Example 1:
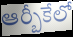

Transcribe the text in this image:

ఆర్బీకేలో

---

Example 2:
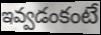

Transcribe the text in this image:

ఇవ్వడంకంటే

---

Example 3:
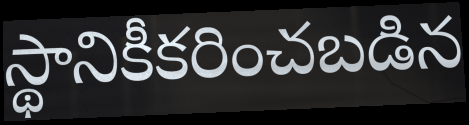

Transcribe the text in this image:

స్థానికీకరించబడిన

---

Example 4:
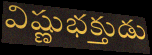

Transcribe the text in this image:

విష్ణుభక్తుడు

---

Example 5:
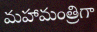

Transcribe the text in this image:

మహామంత్రిగా